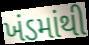
ખંડમાંથી